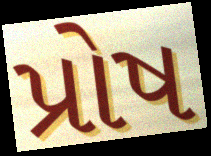
પ્રોષ